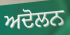
ਅਦੋਲਨ